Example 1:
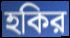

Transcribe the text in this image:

হকির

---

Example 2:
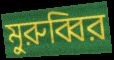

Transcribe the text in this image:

মুরুব্বির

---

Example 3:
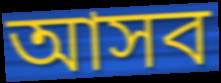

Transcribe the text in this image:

আসব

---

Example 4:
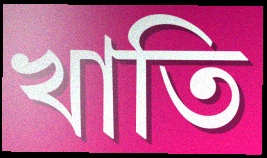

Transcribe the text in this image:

খাতি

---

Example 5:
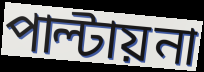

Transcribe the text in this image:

পাল্টায়না